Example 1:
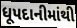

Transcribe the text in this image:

ધૂપદાનીમાંથી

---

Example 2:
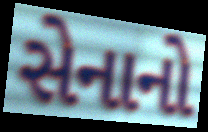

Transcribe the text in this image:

સેનાનો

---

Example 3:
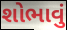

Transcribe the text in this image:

શોભાવું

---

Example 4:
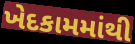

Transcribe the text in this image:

ખેદકામમાંથી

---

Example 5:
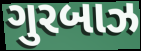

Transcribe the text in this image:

ગુરબાઝ